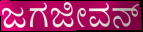
ಜಗಜೀವನ್